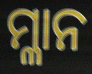
ମ୍ଳାନ